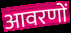
आवरणों